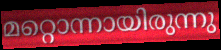
മറ്റൊന്നായിരുന്നു